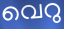
വെറു